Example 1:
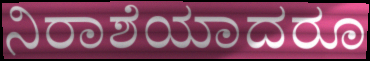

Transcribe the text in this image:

ನಿರಾಶೆಯಾದರೂ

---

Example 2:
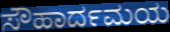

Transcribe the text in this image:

ಸೌಹಾರ್ದಮಯ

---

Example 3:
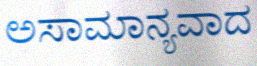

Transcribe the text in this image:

ಅಸಾಮಾನ್ಯವಾದ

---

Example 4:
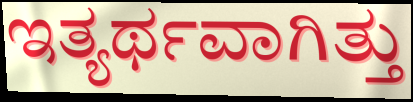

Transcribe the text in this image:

ಇತ್ಯರ್ಥವಾಗಿತ್ತು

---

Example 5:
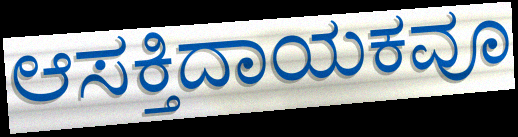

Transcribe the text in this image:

ಆಸಕ್ತಿದಾಯಕವೂ